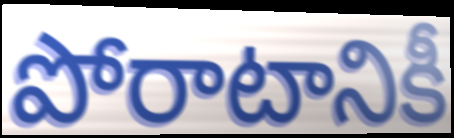
పోరాటానికీ